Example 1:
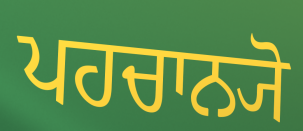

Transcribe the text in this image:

ਪਹਚਾਨ੍ਯੋ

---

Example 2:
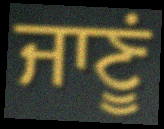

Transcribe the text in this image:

ਜਾਣੂਂ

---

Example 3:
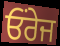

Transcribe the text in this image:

ਓਂਰੇਜ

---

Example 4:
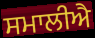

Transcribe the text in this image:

ਸਮਾਲੀਐ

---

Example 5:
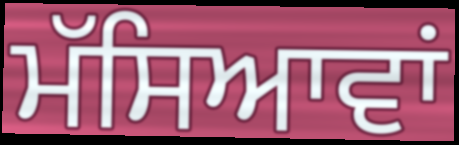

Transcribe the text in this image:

ਮੱਸਿਆਵਾਂ